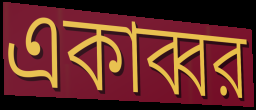
একাব্বর